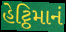
હેટ્ઠિમાનં